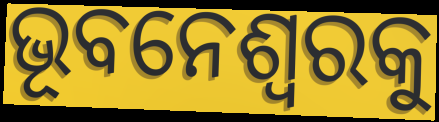
ଭୂବନେଶ୍ୱରକୁ